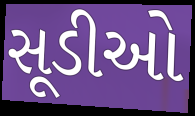
સૂડીઓ